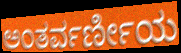
ಅಂತರ್ವರ್ಣೀಯ